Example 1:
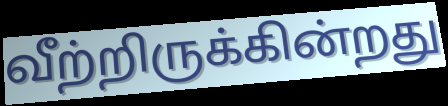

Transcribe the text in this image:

வீற்றிருக்கின்றது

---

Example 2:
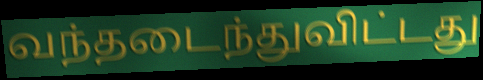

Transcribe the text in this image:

வந்தடைந்துவிட்டது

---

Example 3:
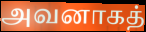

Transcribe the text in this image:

அவனாகத்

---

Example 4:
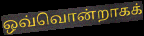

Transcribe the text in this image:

ஒவ்வொன்றாகக்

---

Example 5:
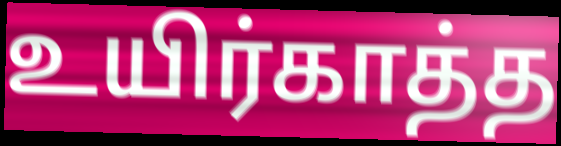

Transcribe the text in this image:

உயிர்காத்த